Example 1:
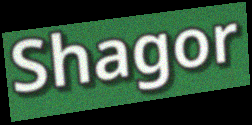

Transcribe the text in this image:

Shagor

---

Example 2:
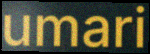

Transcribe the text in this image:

umari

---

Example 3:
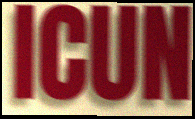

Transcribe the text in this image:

ICUN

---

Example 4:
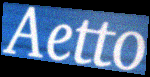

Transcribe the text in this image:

Aetto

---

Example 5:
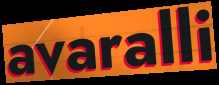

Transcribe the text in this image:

avaralli